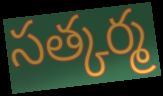
సత్కర్మ